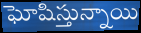
ఘోషిస్తున్నాయి